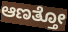
ಆಣತ್ತೋ